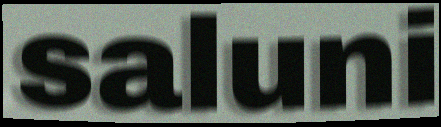
saluni